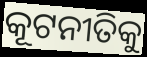
କୂଟନୀତିକୁ